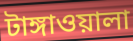
টাঙ্গাওয়ালা